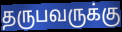
தருபவருக்கு